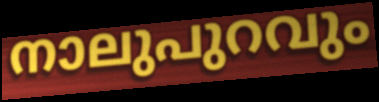
നാലുപുറവും